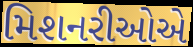
મિશનરીઓએ